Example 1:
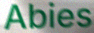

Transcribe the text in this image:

Abies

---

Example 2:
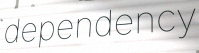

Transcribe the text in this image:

dependency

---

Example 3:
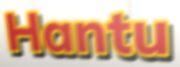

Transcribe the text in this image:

Hantu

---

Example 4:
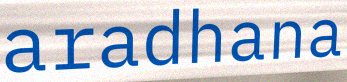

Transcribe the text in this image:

aradhana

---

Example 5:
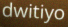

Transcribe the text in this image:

dwitiyo